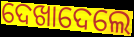
ଦେଖାଦେଲେ